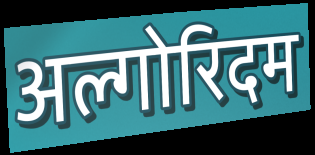
अल्गोरिदम